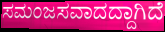
ಸಮಂಜಸವಾದದ್ದಾಗಿದೆ